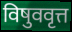
विषुववृत्त